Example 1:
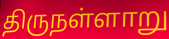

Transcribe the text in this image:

திருநள்ளாறு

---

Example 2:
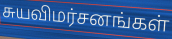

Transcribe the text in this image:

சுயவிமர்சனங்கள்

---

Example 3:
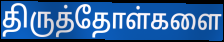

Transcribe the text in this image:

திருத்தோள்களை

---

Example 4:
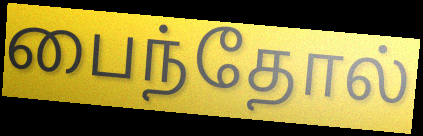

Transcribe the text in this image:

பைந்தோல்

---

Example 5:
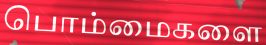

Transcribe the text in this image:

பொம்மைகளை